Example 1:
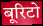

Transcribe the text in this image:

बूरिटो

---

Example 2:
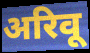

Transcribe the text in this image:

अरिवू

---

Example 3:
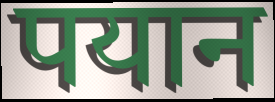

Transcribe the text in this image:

पयान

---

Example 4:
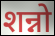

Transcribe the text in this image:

शन्नो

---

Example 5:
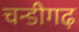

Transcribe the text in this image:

चन्डीगढ़